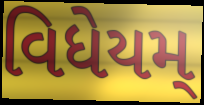
વિધેયમ્